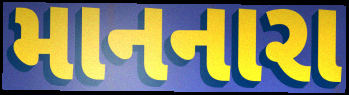
માનનારા